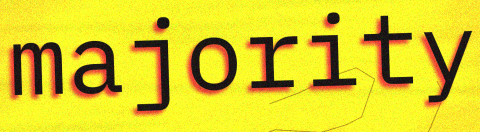
majority